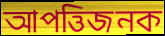
আপত্তিজনক